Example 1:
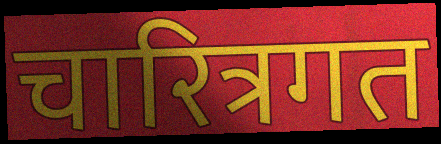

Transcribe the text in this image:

चारित्रगत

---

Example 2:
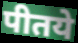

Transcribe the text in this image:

पीतये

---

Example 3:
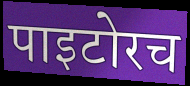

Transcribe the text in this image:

पाइटोरच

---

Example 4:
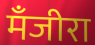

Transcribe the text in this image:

मँजीरा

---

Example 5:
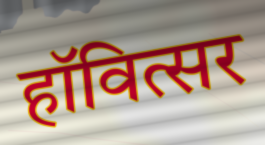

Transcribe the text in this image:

हॉवित्सर